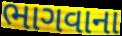
ભાગવાના